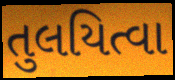
તુલયિત્વા